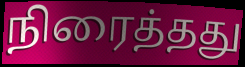
நிரைத்தது